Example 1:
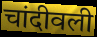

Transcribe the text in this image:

चांदीवली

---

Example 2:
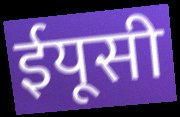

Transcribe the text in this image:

ईयूसी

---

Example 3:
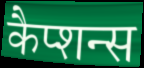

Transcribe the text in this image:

कैप्शन्स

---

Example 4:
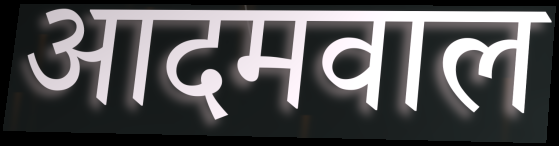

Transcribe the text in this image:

आदमवाल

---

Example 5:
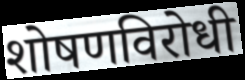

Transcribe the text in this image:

शोषणविरोधी